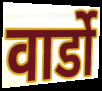
वार्डो